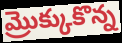
మ్రొక్కుకొన్న